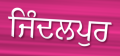
ਜਿੰਦਲਪੁਰ